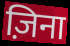
ज़िना